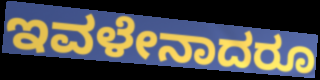
ಇವಳೇನಾದರೂ